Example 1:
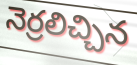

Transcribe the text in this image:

నెర్రలిచ్చిన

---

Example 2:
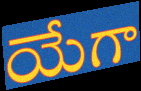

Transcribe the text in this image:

యేగా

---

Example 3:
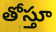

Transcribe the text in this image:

తోస్తూ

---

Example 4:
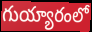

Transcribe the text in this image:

గుయ్యారంలో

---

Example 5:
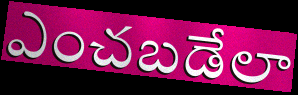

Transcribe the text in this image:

ఎంచబడేలా